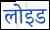
लोइड